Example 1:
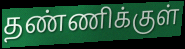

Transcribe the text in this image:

தண்ணிக்குள்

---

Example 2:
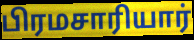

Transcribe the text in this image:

பிரமசாரியார்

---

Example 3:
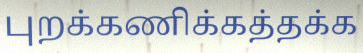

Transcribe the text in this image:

புறக்கணிக்கத்தக்க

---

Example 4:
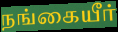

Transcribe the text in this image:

நங்கையீர்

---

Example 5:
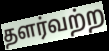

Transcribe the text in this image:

தளர்வற்ற